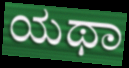
ಯಥಾ